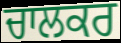
ਚਾਲਕਰ